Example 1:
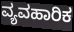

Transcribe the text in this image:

ವ್ಯವಹಾರಿಕ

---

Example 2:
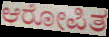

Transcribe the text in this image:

ಆರೋಪಿತ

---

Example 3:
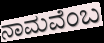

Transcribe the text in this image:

ನಾಮವೆಂಬ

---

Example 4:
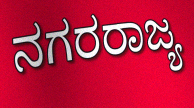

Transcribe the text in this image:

ನಗರರಾಜ್ಯ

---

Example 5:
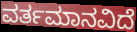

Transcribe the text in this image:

ವರ್ತಮಾನವಿದೆ